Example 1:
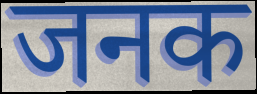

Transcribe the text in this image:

जनक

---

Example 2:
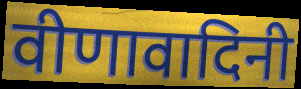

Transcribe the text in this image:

वीणावादिनी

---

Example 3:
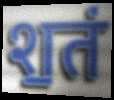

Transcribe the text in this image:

श॒तं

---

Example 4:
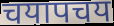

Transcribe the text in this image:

चयापचय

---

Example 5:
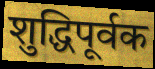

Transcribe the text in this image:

शुद्धिपूर्वक